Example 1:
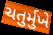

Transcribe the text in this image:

ચતુર્મુખે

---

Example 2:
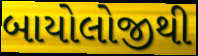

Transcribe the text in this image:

બાયોલોજીથી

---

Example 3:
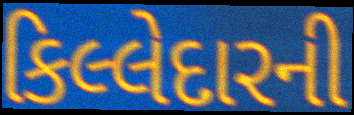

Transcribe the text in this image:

કિલ્લેદારની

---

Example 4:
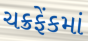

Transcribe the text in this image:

ચક્રફેંકમાં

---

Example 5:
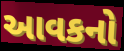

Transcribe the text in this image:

આવકનો